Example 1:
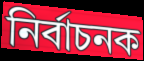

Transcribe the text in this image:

নিৰ্বাচনক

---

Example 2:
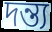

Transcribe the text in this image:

দন্ত্য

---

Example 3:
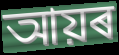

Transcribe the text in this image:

আয়ৰ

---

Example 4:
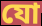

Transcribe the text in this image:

যো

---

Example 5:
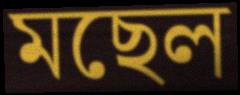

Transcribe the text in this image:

মছেল